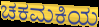
ಚಕಮಕಿಯ